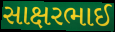
સાક્ષરભાઈ